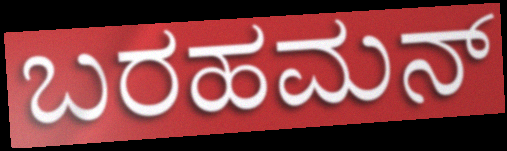
ಬರಹಮನ್